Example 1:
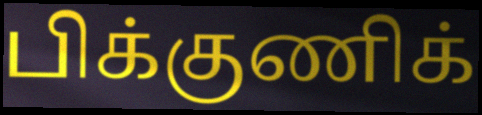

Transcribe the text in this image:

பிக்குணிக்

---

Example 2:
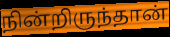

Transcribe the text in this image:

நின்றிருந்தான்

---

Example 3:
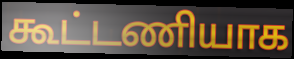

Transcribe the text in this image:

கூட்டணியாக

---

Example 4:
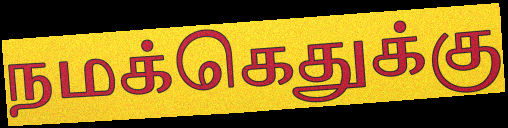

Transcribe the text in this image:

நமக்கெதுக்கு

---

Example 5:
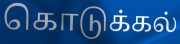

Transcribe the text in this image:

கொடுக்கல்